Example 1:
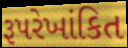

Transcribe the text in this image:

રૂપરેખાંકિત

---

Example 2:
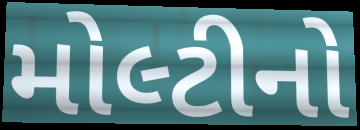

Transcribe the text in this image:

મોલ્ટીનો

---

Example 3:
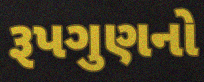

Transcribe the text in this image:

રૂપગુણનો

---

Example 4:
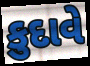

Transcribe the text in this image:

કુદાવે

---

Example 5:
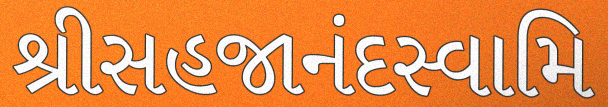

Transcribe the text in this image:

શ્રીસહજાનંદસ્વામિ